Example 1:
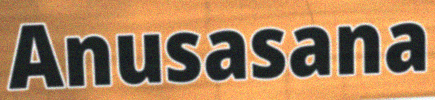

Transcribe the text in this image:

Anusasana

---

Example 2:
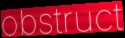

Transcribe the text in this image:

obstruct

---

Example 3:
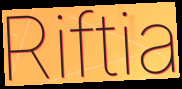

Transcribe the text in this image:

Riftia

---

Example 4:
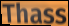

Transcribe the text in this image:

Thass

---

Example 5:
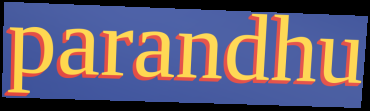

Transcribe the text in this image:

parandhu